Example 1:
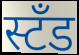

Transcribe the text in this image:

स्टॅंड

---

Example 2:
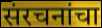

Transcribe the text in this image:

संरचनांचा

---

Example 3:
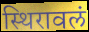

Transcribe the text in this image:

स्थिरावलं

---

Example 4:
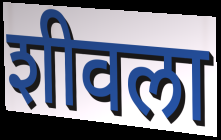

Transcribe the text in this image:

शीवला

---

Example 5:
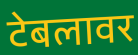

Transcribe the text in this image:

टेबलावर